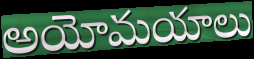
అయోమయాలు